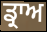
ਡ੍ਰਾਅ